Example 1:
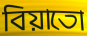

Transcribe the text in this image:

বিয়াতো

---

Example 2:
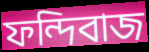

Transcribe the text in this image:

ফন্দিবাজ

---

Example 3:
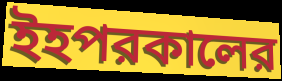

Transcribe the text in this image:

ইহপরকালের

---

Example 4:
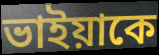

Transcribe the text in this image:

ভাইয়াকে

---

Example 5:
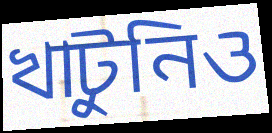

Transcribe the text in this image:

খাটুনিও